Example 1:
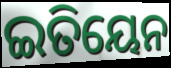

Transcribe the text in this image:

ଇତିୟେନ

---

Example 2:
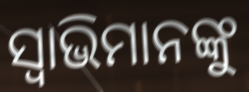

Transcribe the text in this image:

ସ୍ୱାଭିମାନଙ୍କୁ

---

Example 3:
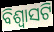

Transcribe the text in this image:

ବିଶ୍ୱାସଟି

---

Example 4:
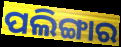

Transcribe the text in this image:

ପଲିଙ୍ଗାର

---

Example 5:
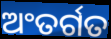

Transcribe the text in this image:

ଅଂତର୍ଗତ